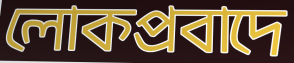
লোকপ্রবাদে